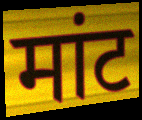
मांट